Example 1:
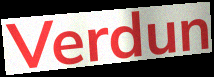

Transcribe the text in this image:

Verdun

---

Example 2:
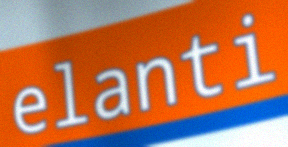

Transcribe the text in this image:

elanti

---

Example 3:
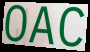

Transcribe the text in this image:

OAC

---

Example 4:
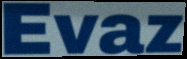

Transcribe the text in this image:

Evaz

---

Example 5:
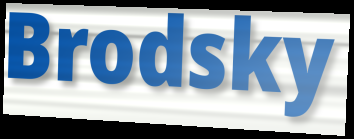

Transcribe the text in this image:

Brodsky